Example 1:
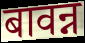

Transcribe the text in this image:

बावन्न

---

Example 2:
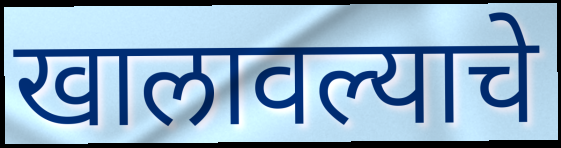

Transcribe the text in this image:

खालावल्याचे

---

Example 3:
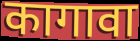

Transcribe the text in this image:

कागावा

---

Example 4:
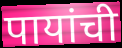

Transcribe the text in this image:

पायांची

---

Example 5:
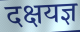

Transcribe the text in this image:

दक्षयज्ञ